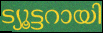
ട്യൂട്ടറായി